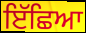
ਇੱਛਿਆ